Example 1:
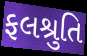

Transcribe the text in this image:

ફલશ્રુતિ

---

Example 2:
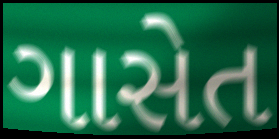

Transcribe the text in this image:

ગાસેત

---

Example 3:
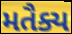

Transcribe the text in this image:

મતૈક્ય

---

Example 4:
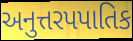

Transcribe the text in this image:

અનુત્તરપપાતિક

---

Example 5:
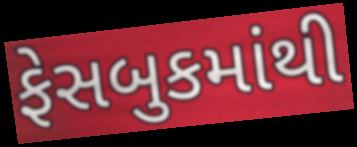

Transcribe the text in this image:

ફેસબુકમાંથી